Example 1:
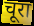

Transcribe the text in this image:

चूरा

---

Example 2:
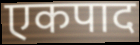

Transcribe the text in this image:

एकपाद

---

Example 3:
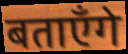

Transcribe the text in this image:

बताएँगे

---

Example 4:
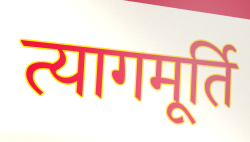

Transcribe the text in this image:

त्यागमूर्ति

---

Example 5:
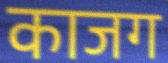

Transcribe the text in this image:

काजग